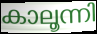
കാലൂന്നി